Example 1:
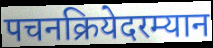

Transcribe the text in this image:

पचनक्रियेदरम्यान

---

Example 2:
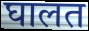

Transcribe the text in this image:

घालत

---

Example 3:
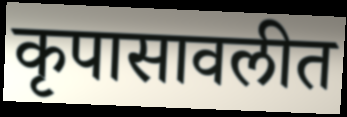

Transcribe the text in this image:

कृपासावलीत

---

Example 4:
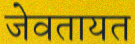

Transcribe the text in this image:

जेवतायत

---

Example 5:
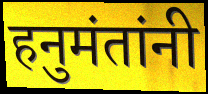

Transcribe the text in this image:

हनुमंतांनी